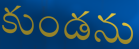
కుండను